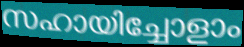
സഹായിച്ചോളാം